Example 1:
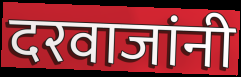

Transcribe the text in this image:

दरवाजांनी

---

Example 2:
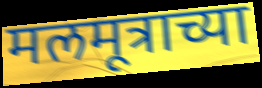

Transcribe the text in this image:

मलमूत्राच्या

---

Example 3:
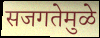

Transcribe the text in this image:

सजगतेमुळे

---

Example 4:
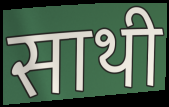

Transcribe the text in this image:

साथी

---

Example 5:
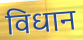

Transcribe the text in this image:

विधान